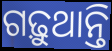
ଗଢ଼ୁଥାନ୍ତି